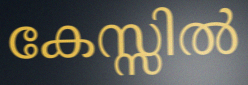
കേസ്സിൽ